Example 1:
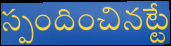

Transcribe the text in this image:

స్పందించినట్టే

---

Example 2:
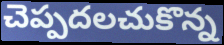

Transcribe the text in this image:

చెప్పదలచుకొన్న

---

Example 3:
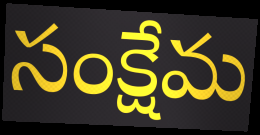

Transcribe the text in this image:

సంక్షేమ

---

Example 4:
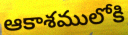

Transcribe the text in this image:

ఆకాశములోకి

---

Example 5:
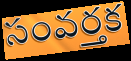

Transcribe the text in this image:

సంవర్తక